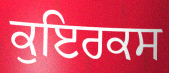
ਕੁਇਰਕਸ